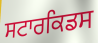
ਸਟਾਰਕਿਡਸ